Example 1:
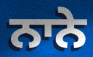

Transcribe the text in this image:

ਨਾਨੇ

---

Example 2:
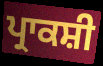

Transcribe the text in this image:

ਪ੍ਰਾਕਸ਼ੀ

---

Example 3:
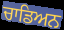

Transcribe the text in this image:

ਚਾਡਿਅਨ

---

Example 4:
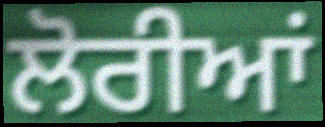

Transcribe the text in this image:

ਲੋਰੀਆਂ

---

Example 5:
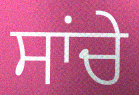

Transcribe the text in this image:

ਸਾਂਚੇ